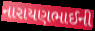
નારાયણભાઈની